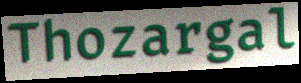
Thozargal